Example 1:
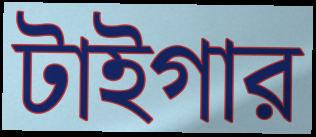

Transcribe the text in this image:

টাইগার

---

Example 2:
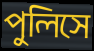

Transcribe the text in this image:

পুলিসে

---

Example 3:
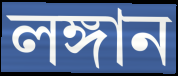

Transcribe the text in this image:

লঙ্গান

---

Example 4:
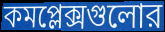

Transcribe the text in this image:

কমপ্লেক্সগুলোর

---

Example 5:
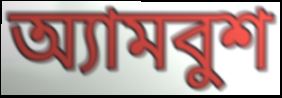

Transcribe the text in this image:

অ্যামবুশ